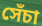
সেঁচা